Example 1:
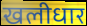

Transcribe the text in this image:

खलीधार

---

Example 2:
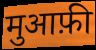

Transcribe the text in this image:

मुआफ़ी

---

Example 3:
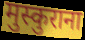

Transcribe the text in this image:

मुस्कुराना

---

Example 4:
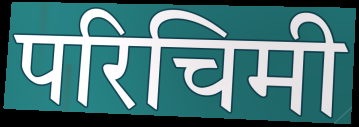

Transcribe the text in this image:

परिचिमी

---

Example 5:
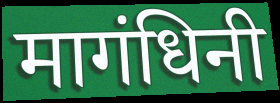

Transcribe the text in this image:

मागंधिनी